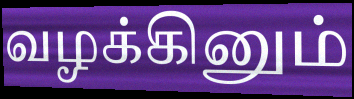
வழக்கினும்